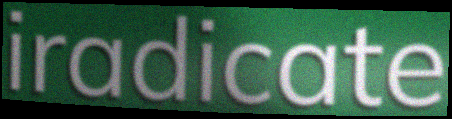
iradicate